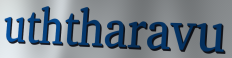
uththaravu